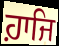
ਹ਼ਾਜਿ